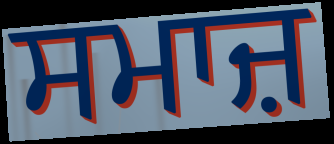
ਸਮਾਜ਼